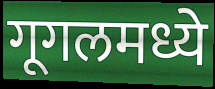
गूगलमध्ये